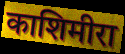
काशिमीरा